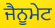
ਜੈਨੂਮੇਟ